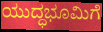
ಯುದ್ಧಭೂಮಿಗೆ